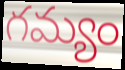
గమ్యం